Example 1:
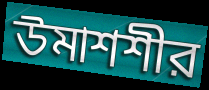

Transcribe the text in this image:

উমাশশীর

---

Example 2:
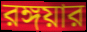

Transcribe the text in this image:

রঙ্গয়ার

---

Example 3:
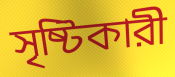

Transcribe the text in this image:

সৃষ্টিকারী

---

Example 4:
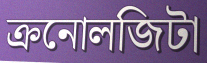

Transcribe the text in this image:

ক্রনোলজিটা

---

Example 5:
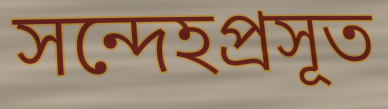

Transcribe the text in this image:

সন্দেহপ্রসূত